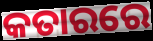
କତାରରେ